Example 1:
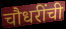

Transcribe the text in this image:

चौधरींची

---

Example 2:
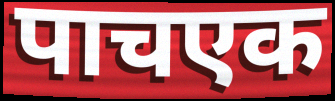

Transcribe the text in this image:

पाचएक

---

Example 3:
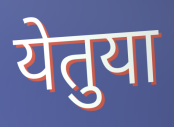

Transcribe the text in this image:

येतुया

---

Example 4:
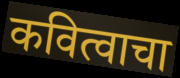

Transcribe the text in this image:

कवित्वाचा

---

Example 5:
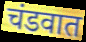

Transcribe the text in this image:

चंडवात